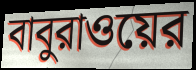
বাবুরাওয়ের